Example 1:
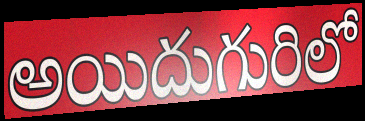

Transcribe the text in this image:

అయిదుగురిలో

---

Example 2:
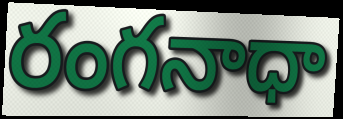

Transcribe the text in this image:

రంగనాధా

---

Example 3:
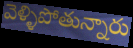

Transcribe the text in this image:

వెళ్ళిపోతున్నారు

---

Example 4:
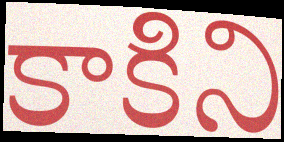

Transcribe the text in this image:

కాకిని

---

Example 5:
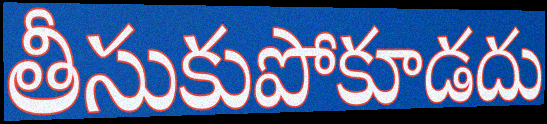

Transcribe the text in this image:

తీసుకుపోకూడదు